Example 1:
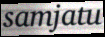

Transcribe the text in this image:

samjatu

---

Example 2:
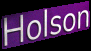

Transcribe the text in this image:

Holson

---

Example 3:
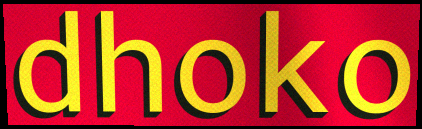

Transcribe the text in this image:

dhoko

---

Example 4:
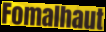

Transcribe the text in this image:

Fomalhaut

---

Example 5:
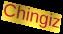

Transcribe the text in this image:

Chingiz